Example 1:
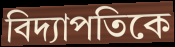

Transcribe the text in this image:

বিদ্যাপতিকে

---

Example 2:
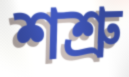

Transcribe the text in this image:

শশ্রু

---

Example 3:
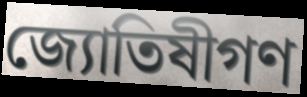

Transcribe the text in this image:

জ্যোতিষীগণ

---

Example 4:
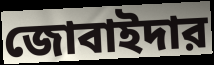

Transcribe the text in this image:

জোবাইদার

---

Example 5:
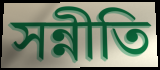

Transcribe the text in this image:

সন্নীতি